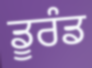
ਡੂਰੰਡ